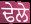
ਢੇਲੇ